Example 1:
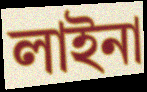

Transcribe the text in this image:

লাইনা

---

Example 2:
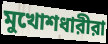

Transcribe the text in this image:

মুখোশধারীরা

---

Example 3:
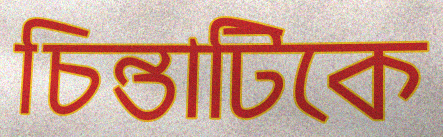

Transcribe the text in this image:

চিন্তাটিকে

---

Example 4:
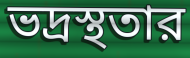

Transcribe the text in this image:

ভদ্রস্থতার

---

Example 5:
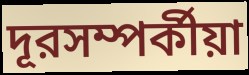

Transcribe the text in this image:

দূরসম্পর্কীয়া